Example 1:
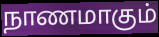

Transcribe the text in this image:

நாணமாகும்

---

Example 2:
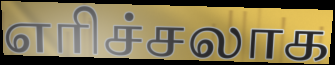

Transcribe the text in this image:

எரிச்சலாக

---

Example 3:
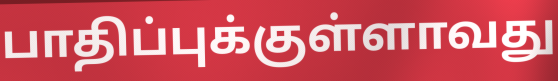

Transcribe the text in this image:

பாதிப்புக்குள்ளாவது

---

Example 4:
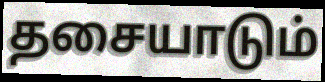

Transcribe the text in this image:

தசையாடும்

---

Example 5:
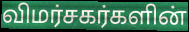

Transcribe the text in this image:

விமர்சகர்களின்